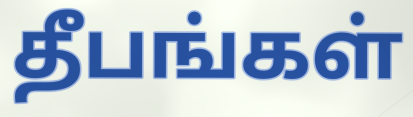
தீபங்கள்